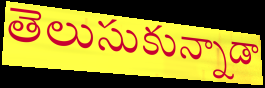
తెలుసుకున్నాడా